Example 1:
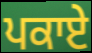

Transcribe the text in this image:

ਪਕਾਏ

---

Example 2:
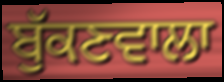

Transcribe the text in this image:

ਬੁੱਕਣਵਾਲਾ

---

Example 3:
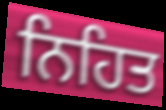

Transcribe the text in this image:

ਨਿਹਿਤ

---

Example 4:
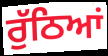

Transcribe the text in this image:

ਰੁੱਠਿਆਂ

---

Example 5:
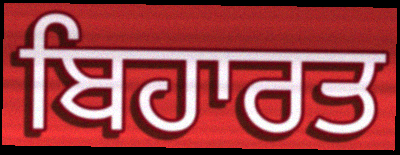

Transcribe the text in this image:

ਬਿਹਾਰਤ